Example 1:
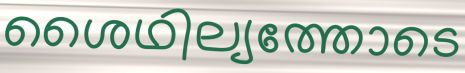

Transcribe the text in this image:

ശൈഥില്യത്തോടെ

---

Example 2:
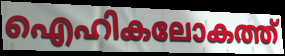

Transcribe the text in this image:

ഐഹികലോകത്ത്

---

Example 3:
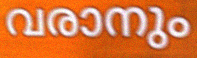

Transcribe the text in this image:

വരാനും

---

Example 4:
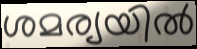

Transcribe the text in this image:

ശമര്യയിൽ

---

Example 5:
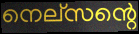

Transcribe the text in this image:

നെല്സന്റെ